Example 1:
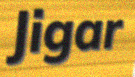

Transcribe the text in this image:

Jigar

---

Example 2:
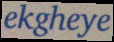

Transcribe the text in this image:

ekgheye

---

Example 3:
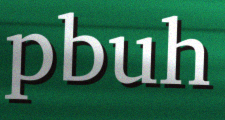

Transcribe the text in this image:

pbuh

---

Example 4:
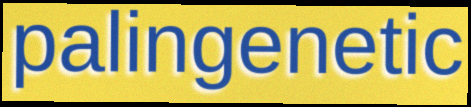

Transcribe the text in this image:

palingenetic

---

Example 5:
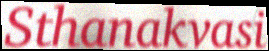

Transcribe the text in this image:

Sthanakvasi